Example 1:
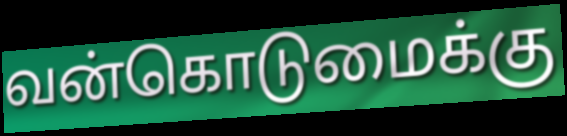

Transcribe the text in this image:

வன்கொடுமைக்கு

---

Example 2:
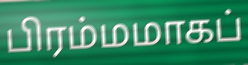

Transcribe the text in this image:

பிரம்மமாகப்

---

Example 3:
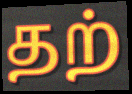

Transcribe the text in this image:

தற்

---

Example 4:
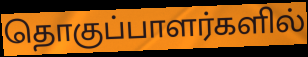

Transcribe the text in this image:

தொகுப்பாளர்களில்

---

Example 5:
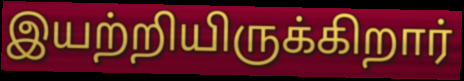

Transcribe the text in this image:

இயற்றியிருக்கிறார்